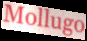
Mollugo